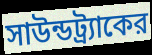
সাউন্ডট্র্যাকের